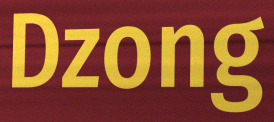
Dzong